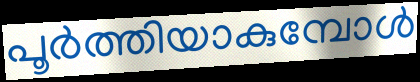
പൂർത്തിയാകുമ്പോൾ